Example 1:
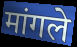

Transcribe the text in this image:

मांगले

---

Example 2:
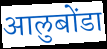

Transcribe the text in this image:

आलुबोंडा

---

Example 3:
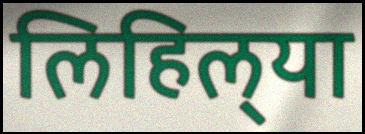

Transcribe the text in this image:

लिहिल्या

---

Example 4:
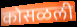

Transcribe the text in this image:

कोसळली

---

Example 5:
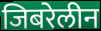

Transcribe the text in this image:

जिबरेलीन